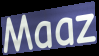
Maaz